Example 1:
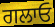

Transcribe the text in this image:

ਗਲਾਓ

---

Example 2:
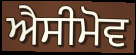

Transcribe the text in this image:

ਐਸੀਮੋਵ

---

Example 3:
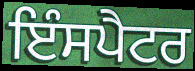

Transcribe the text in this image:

ਇੰਸਪੈਟਰ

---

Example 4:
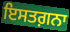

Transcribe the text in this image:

ਇਸਤਗ਼ਨਾ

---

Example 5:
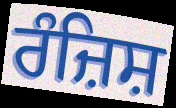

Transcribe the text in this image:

ਰੰਜ਼ਿਸ਼